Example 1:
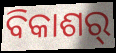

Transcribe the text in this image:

ବିକାଶର୍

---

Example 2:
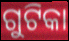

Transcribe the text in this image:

ଗୁଟିକା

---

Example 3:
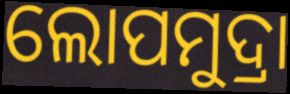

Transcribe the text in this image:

ଲୋପମୁଦ୍ରା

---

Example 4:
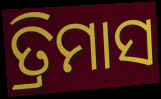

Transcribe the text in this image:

ତ୍ରିମାସ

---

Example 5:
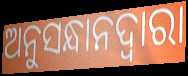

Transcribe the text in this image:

ଅନୁସନ୍ଧାନଦ୍ୱାରା